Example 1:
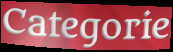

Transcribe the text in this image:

Categorie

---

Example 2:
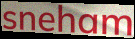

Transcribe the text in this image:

sneham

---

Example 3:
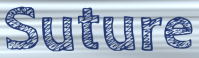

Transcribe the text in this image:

Suture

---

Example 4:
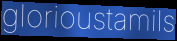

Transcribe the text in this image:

glorioustamils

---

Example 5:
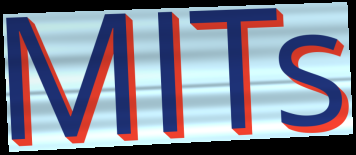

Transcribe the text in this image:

MITs